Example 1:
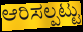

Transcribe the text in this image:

ಆರಿಸಲ್ಪಟ್ಟು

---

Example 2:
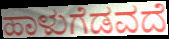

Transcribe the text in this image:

ಹಾಳುಗೆಡವದೆ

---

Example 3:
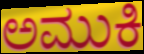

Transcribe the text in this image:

ಅಮುಕಿ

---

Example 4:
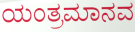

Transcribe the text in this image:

ಯಂತ್ರಮಾನವ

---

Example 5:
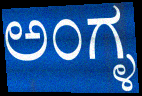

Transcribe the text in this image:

ಅಂಗ್ಳ